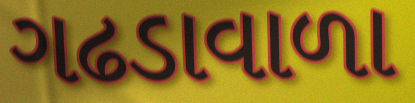
ગઢડાવાળા